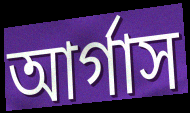
আর্গাস